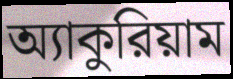
অ্যাকুরিয়াম